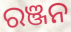
ରଞ୍ଜନ